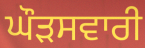
ਘੌੜਸਵਾਰੀ